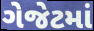
ગેજેટમાં